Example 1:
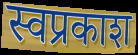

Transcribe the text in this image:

स्वप्रकाश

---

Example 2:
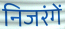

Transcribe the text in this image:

निजरंगें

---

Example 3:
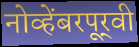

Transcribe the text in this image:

नोव्हेंबरपूर्वी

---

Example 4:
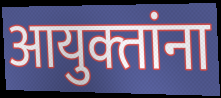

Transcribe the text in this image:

आयुक्‍तांना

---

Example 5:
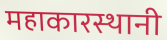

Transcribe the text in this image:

महाकारस्थानी